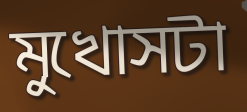
মুখোসটা